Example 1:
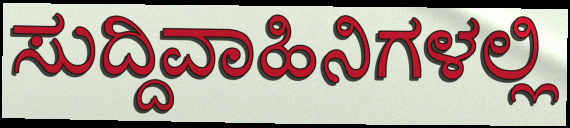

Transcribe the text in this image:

ಸುದ್ದಿವಾಹಿನಿಗಳಲ್ಲಿ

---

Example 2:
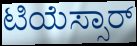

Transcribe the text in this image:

ಟಿಯೆಸ್ಸಾರ್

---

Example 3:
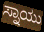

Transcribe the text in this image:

ಸ್ನಾಯು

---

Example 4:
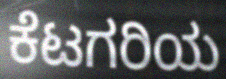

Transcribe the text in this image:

ಕೆಟಗರಿಯ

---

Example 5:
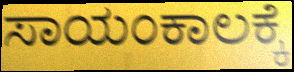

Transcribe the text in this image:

ಸಾಯಂಕಾಲಕ್ಕೆ